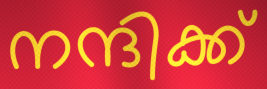
നന്ദിക്ക്